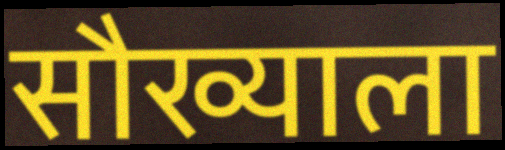
सौख्याला